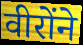
वीरोंने